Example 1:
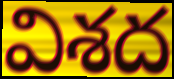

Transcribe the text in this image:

విశద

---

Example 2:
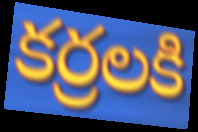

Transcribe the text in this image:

కర్రలకి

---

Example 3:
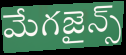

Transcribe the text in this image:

మేగజైన్స్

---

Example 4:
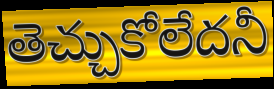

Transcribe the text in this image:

తెచ్చుకోలేదనీ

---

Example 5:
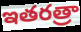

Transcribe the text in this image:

ఇతరత్రా